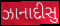
ઝાનાદીસુ